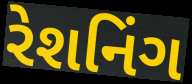
રેશનિંગ